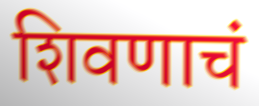
शिवणाचं